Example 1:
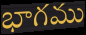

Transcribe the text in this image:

భాగము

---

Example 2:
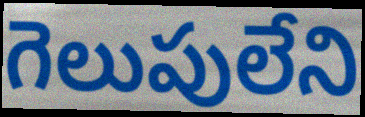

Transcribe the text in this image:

గెలుపులేని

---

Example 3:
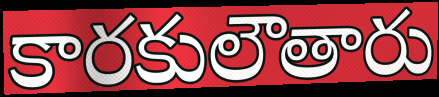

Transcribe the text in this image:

కారకులౌతారు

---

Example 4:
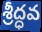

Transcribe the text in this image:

శ్రీద్ధవ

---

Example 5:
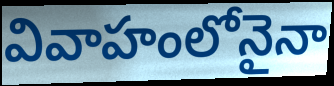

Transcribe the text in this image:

వివాహంలోనైనా